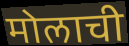
मोलाची